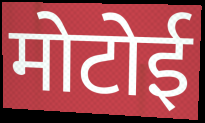
मोटोई